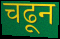
चढून